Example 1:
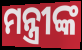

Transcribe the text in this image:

ମନ୍ତ୍ରୀଙ୍କ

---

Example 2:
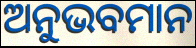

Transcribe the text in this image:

ଅନୁଭବମାନ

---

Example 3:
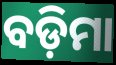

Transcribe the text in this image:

ବଡ଼ିମା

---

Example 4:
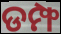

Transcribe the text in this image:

ଡମ୍ଫ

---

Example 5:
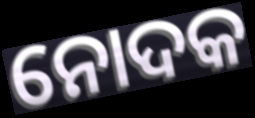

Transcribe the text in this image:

ନୋଦକ